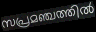
സപ്രമഞ്ചത്തിൽ